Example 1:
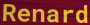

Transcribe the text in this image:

Renard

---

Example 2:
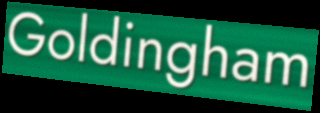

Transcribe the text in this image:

Goldingham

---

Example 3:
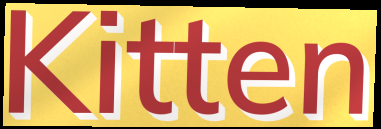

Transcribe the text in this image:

Kitten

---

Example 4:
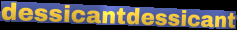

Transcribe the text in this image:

dessicantdessicant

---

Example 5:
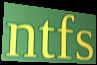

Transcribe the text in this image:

ntfs